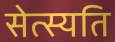
सेत्स्यति